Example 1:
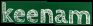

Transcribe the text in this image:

keenam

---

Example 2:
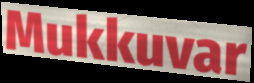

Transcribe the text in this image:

Mukkuvar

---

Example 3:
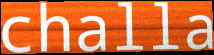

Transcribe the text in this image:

challa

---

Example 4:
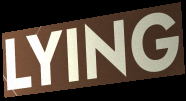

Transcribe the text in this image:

LYING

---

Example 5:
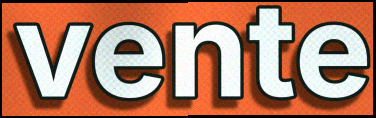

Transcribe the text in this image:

vente